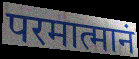
परमात्मानं